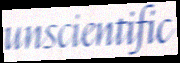
unscientific